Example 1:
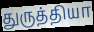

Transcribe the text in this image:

துருத்தியா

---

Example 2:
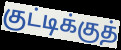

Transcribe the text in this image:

குட்டிக்குத்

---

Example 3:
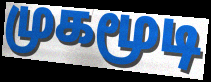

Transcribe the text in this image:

முகமூடி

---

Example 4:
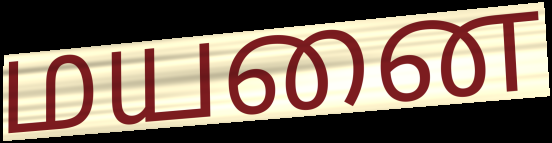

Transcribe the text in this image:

மயனை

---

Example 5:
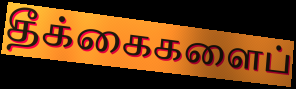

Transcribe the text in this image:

தீக்கைகளைப்